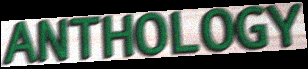
ANTHOLOGY